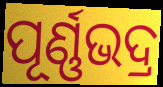
ପୂର୍ଣ୍ଣଭଦ୍ର